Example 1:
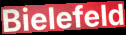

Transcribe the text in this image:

Bielefeld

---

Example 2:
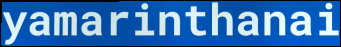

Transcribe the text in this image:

yamarinthanai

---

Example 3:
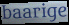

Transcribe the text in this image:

baarige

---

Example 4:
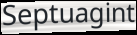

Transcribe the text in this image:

Septuagint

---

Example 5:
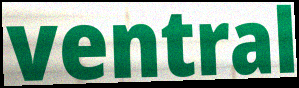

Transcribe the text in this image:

ventral